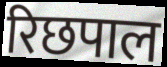
रिछपाल